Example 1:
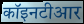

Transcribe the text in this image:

कॉइनटीआर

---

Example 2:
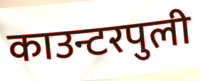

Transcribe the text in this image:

काउन्टरपुली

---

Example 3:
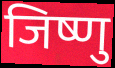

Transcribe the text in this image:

जिष्णु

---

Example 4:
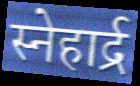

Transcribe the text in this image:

स्नेहार्द्र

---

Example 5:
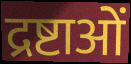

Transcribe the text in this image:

द्रष्टाओं